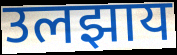
उलझाय